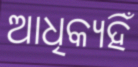
ଆଧିକ୍ୟହିଁ